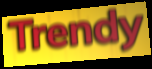
Trendy